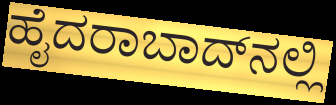
ಹೈದರಾಬಾದ್‌ನಲ್ಲಿ